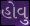
હોવુ